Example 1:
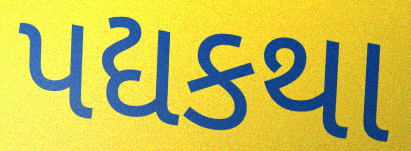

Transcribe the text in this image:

પદ્યકથા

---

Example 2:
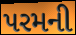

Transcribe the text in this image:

પરમની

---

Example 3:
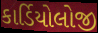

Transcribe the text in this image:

કાર્ડિયોલોજી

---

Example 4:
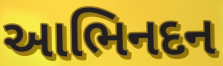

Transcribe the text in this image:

આભિનદન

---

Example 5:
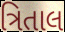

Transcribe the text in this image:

ત્રિતાલ